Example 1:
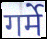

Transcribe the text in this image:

गर्मे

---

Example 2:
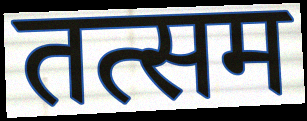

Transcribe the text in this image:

तत्सम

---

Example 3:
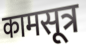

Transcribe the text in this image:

कामसूत्र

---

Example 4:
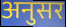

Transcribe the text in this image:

अनुसर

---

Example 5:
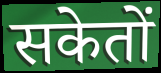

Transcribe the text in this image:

सकेतों